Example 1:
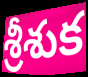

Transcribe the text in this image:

శ్రీశుక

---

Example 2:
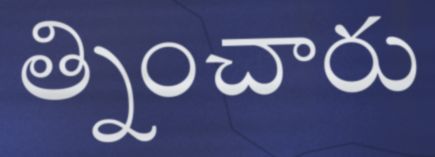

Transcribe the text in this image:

త్నించారు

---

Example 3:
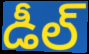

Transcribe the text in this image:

డీల్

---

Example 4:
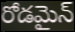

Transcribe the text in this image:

రోడమైన్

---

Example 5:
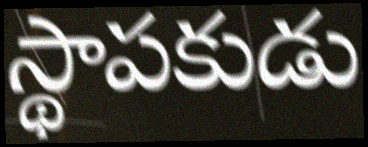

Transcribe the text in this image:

స్థాపకుడు